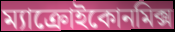
ম্যাক্রোইকোনমিক্স